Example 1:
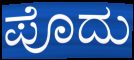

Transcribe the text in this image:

ಪೊದು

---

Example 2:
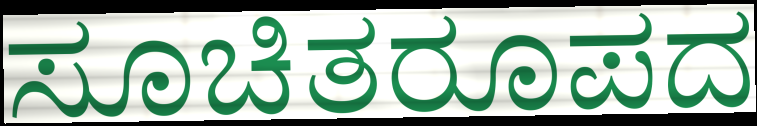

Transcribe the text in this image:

ಸೂಚಿತರೂಪದ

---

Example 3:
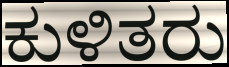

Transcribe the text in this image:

ಕುಳಿತರು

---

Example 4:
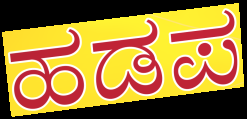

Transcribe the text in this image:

ಹಡಪ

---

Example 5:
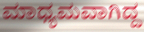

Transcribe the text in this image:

ಮಾಧ್ಯಮವಾಗಿದ್ದ